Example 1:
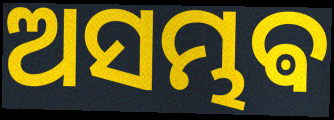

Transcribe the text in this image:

ଅସମ୍ଭଵ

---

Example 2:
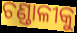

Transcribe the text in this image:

ଚଣ୍ଡାଳୀକୁ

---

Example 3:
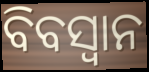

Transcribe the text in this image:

ବିବସ୍ୱାନ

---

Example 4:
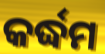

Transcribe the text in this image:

କର୍ଦ୍ଧମ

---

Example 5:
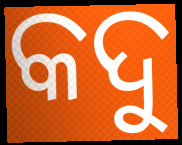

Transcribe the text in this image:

କଦୁ